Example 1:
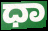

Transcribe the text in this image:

ಧಾ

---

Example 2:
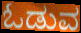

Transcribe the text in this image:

ಓಡುವ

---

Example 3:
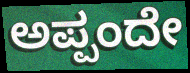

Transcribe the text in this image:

ಅಪ್ಪಂದೇ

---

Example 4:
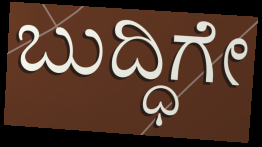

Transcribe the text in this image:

ಬುದ್ಧಿಗೇ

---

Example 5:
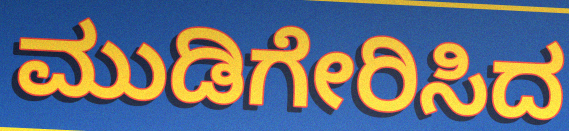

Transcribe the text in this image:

ಮುಡಿಗೇರಿಸಿದ